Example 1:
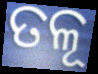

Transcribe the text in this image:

ତଳୂ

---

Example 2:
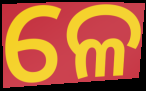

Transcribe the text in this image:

ଳେ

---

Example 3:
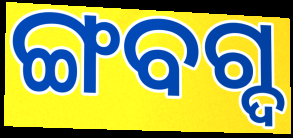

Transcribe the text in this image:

ଙ୍ଗବଗ୍ଦ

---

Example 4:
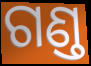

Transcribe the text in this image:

ଗଣ୍ଡ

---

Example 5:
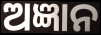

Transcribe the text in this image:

ଅଜ୍ଞାନ